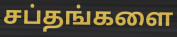
சப்தங்களை